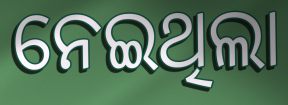
ନେଇଥିଲା